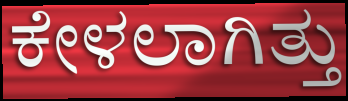
ಕೇಳಲಾಗಿತ್ತು